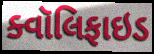
ક્વૉલિફાઇડ